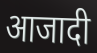
आजादी